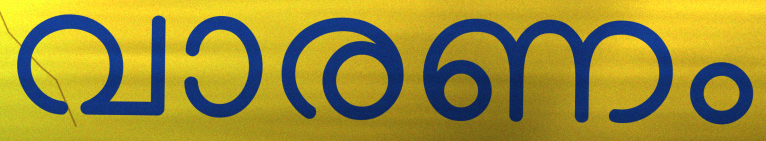
വാരണം